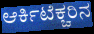
ಆರ್ಕಿಟೆಕ್ಚರಿನ